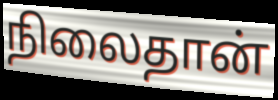
நிலைதான்